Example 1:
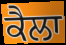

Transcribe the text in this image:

ਕੈਲਾ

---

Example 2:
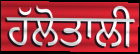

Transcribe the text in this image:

ਹੱਲੋਤਾਲੀ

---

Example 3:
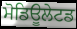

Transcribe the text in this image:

ਮੋਡਿਊਲੇਟਡ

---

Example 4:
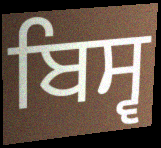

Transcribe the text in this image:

ਬਿਸ੍ਵ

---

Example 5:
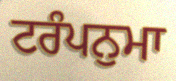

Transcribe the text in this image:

ਟਰੰਪਨੁਮਾ